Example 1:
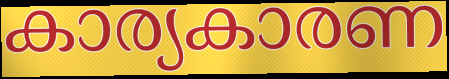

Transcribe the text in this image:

കാര്യകാരണ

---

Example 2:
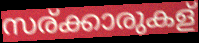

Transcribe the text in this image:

സര്ക്കാരുകള്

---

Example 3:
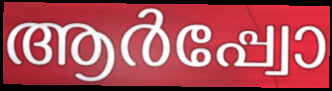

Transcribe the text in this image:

ആർപ്പ്വോ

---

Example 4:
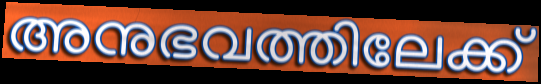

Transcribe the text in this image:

അനുഭവത്തിലേക്ക്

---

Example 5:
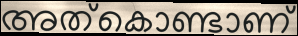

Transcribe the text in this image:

അത്കൊണ്ടാണ്